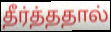
தீர்த்ததால்